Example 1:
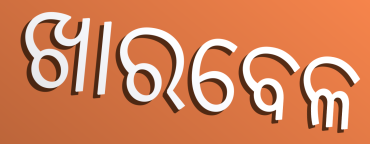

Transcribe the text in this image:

ଖାରବେଳ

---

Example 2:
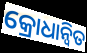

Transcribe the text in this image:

କ୍ରୋଧାନ୍ୱିତ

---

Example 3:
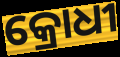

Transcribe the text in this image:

କ୍ରୋଧୀ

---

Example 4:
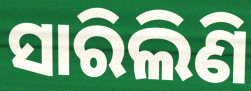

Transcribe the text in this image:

ସାରିଲିଣି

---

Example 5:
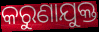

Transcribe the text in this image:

କରୁଣାଯୁକ୍ତ